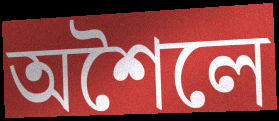
অশৈলে